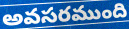
అవసరముంది